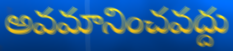
అవమానించవద్దు